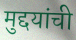
मुद्दयांची